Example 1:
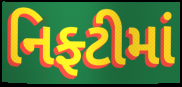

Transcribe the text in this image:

નિફ્ટીમાં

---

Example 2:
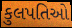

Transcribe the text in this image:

કુલપતિઓ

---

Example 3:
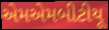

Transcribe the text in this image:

એમએમબીટીયૂ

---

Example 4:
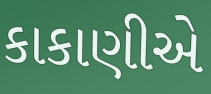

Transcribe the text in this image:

કાકાણીએ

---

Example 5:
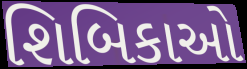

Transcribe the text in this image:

શિબિકાઓ